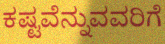
ಕಷ್ಟವೆನ್ನುವವರಿಗೆ